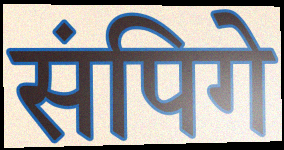
संपिगे